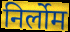
निर्लोम